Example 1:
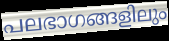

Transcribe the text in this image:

പലഭാഗങ്ങളിലും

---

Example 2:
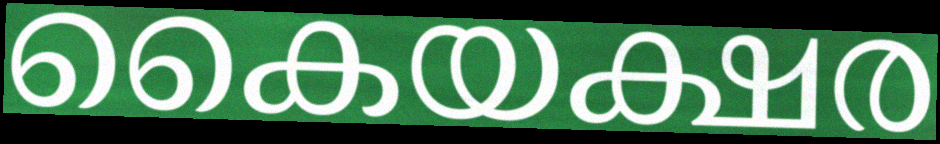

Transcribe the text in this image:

കൈയക്ഷര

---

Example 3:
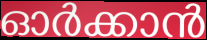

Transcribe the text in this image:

ഓർക്കാൻ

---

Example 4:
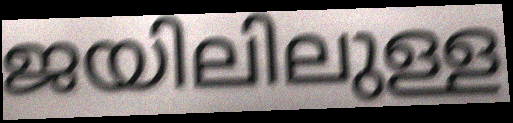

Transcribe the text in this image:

ജയിലിലുള്ള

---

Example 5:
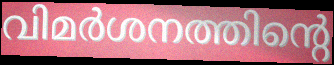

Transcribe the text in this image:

വിമർശനത്തിന്റെ